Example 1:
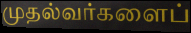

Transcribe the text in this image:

முதல்வர்களைப்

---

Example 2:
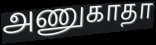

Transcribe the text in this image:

அணுகாதா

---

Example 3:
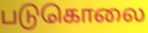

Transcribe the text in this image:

படுகொலை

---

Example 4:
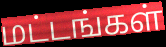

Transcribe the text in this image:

மட்டங்கள்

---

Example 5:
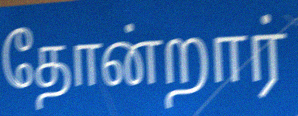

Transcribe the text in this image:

தோன்றார்